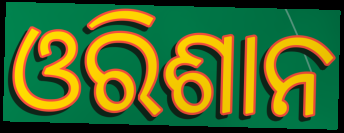
ଓରିଶାନ